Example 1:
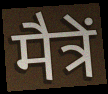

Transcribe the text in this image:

मैत्रें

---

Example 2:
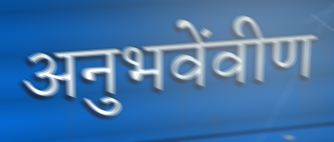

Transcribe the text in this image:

अनुभवेंवीण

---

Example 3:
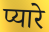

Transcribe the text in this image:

प्यारे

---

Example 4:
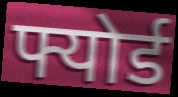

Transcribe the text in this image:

फ्योर्ड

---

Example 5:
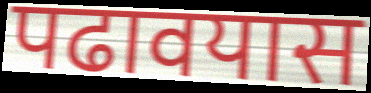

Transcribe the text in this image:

पढावयास